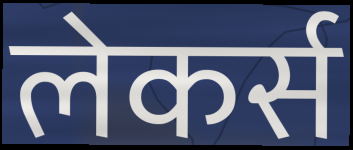
लेकर्स